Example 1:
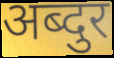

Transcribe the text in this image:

अब्दुर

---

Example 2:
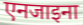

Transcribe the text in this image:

एनजाइना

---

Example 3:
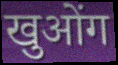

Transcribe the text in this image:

खुओंग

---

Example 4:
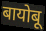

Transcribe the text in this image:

बायोबू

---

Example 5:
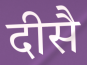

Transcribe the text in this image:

दीसै